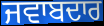
ਜਵਾਬਦਾਰ